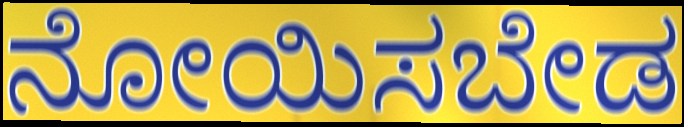
ನೋಯಿಸಬೇಡ